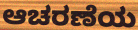
ಆಚರಣೆಯ